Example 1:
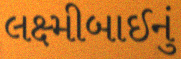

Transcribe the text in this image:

લક્ષ્મીબાઈનું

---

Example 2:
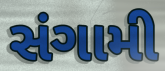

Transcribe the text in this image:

સંગામી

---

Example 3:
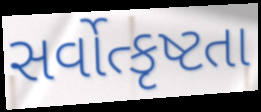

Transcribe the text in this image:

સર્વોત્કૃષ્ટતા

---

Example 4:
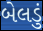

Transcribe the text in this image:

બેલડું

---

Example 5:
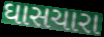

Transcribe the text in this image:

ઘાસચારા